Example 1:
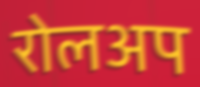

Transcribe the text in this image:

रोलअप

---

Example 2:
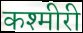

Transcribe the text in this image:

कश्मीरी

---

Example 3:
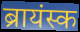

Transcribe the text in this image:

ब्रायंस्क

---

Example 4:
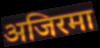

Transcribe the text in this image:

अजिरमा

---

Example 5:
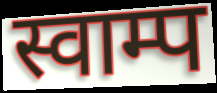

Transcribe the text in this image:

स्वाम्प